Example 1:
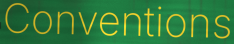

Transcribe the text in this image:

Conventions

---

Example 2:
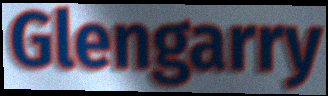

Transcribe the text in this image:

Glengarry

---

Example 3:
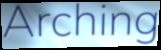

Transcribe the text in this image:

Arching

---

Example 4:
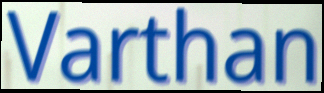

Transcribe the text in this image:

Varthan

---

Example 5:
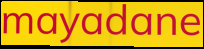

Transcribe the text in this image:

mayadane